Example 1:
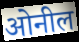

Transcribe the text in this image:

ओनील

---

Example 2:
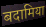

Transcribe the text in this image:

बदामिया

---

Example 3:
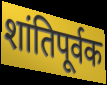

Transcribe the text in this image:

शांतिपूर्वक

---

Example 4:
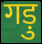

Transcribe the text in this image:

गड़ु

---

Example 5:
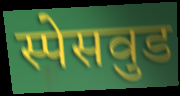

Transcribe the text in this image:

स्पेसवुड